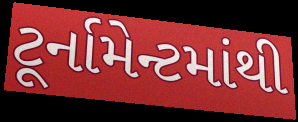
ટૂર્નામેન્ટમાંથી